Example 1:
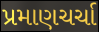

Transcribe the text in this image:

પ્રમાણચર્ચા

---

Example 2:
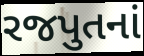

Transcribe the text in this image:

રજપુતનાં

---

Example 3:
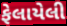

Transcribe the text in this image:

ફેલાયેલી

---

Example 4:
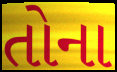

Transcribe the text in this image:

તોના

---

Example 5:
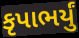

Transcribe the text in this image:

કૃપાભર્યું